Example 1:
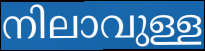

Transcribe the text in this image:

നിലാവുള്ള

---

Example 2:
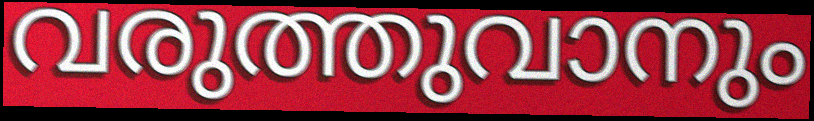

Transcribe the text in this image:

വരുത്തുവാനും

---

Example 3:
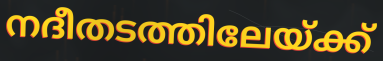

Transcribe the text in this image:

നദീതടത്തിലേയ്ക്ക്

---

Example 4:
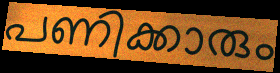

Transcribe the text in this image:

പണിക്കാരും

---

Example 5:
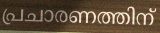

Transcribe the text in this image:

പ്രചാരണത്തിന്